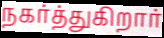
நகர்த்துகிறார்